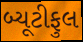
બ્યૂટીફુલ